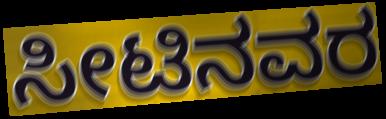
ಸೀಟಿನವರ